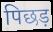
पिछड़